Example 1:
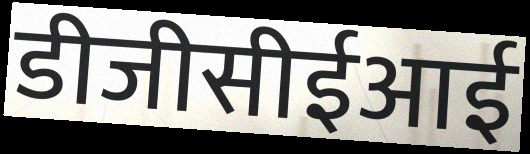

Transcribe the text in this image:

डीजीसीईआई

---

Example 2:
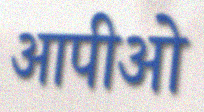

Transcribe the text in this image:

आपीओ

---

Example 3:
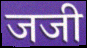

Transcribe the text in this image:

जजी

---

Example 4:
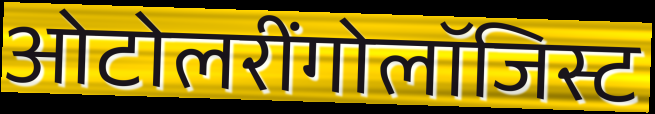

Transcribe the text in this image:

ओटोलरींगोलॉजिस्ट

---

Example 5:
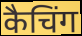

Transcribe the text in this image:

कैचिंग